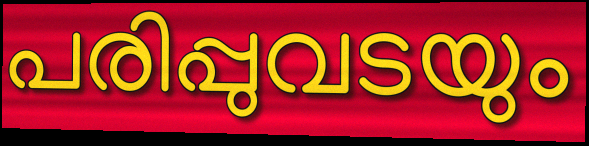
പരിപ്പുവടയും